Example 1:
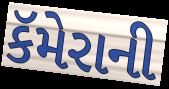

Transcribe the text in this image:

કૅમેરાની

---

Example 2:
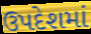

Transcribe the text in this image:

ઉપદેશમાં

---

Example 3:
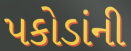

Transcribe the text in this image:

પકોડાંની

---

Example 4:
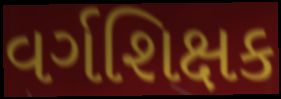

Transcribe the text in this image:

વર્ગશિક્ષક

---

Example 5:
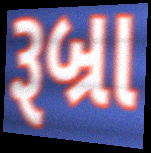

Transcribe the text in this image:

રૂબ્રા